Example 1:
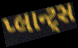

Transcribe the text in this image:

પ્લાન્ટ્સ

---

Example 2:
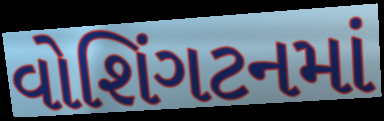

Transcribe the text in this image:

વોશિંગટનમાં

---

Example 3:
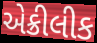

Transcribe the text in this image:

એક્રીલીક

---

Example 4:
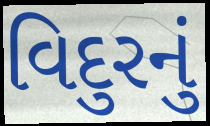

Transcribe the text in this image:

વિદુરનું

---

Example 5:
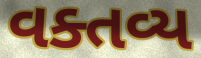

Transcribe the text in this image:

વક્તવ્ય